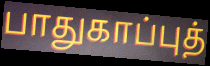
பாதுகாப்புத்